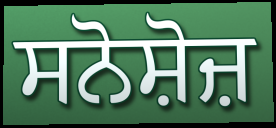
ਸਨੋਸ਼ੋਜ਼